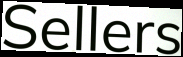
Sellers